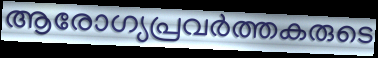
ആരോഗ്യപ്രവർത്തകരുടെ